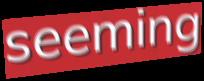
seeming